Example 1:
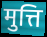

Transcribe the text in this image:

मुत्ति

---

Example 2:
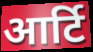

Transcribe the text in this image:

आर्टि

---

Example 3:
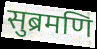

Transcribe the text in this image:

सुब्रमणि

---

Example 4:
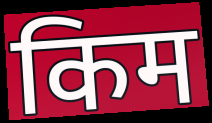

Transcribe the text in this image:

किम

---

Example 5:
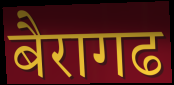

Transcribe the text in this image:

बैरागढ